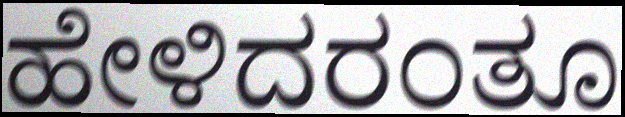
ಹೇಳಿದರಂತೂ